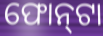
ଫୋନ୍‍ଟା